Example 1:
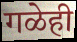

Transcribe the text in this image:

गळेही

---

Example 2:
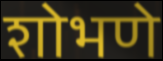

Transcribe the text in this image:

शोभणे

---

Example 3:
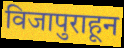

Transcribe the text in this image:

विजापुराहून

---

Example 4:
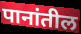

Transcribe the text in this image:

पानांतील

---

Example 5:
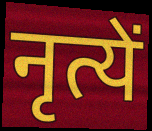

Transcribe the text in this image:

नृत्यें